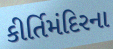
કીર્તિમંદિરના